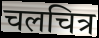
चलचित्र